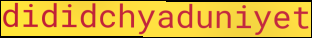
dididchyaduniyet